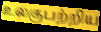
உலகுபற்றிய